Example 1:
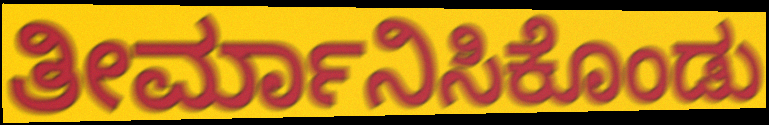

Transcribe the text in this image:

ತೀರ್ಮಾನಿಸಿಕೊಂಡು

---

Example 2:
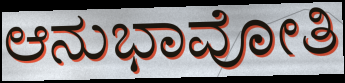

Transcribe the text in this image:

ಆನುಭಾವೋತಿ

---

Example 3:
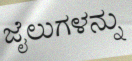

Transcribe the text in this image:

ಜೈಲುಗಳನ್ನು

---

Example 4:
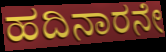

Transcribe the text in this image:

ಹದಿನಾರನೇ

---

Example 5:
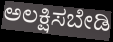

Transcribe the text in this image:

ಅಲಕ್ಷಿಸಬೇಡಿ